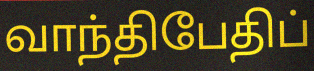
வாந்திபேதிப்